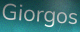
Giorgos